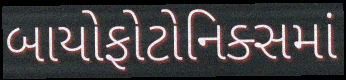
બાયોફોટોનિક્સમાં